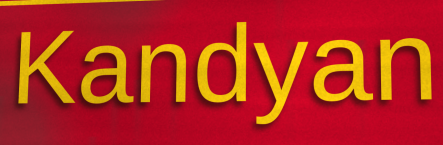
Kandyan